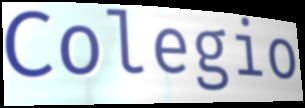
Colegio